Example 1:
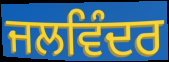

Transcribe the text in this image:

ਜਲਵਿੰਦਰ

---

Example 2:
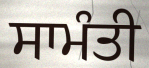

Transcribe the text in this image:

ਸਾਮੰਤੀ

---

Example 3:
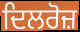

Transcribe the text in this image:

ਦਿਲਰੋਜ਼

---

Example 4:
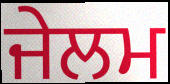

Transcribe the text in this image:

ਜੇਲਮ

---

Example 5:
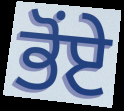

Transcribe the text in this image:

ਭੋਂਏ